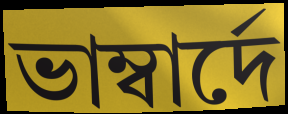
ভাম্বাৰ্দে